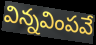
విన్నవింపవే